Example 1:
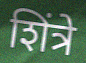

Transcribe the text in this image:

शिंत्रे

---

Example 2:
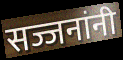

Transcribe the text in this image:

सज्जनांनी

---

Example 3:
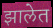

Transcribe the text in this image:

झालेत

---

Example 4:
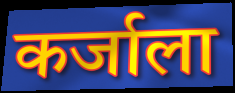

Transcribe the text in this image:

कर्जाला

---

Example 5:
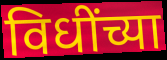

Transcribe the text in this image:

विधींच्या